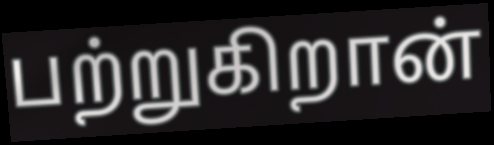
பற்றுகிறான்